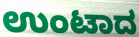
ಉಂಟಾದ